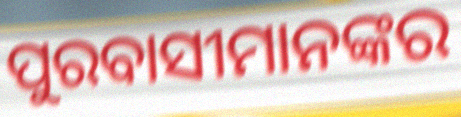
ପୁରବାସୀମାନଙ୍କର